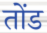
तोंड